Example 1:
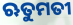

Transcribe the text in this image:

ଋତୁମତୀ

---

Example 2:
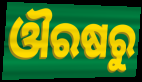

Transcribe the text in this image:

ଔରଷରୁ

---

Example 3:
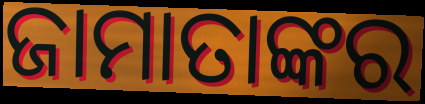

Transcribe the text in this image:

ଜାମାତାଙ୍କର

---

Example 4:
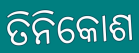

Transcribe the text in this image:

ତିନିକୋଶ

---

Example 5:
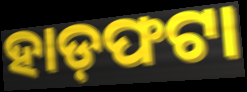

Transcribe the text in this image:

ହାଡ଼ଫଟା